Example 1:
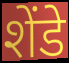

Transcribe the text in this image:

शेंडे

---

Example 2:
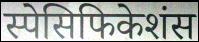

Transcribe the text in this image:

स्पेसिफिकेशंस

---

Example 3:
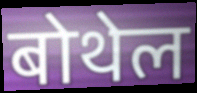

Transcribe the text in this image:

बोथेल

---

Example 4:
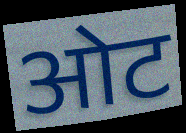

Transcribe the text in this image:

ओट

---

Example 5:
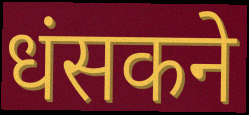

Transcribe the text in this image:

धंसकने